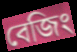
বেজিং